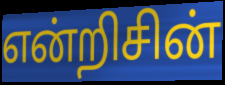
என்றிசின்